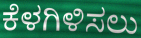
ಕೆಳಗಿಳಿಸಲು